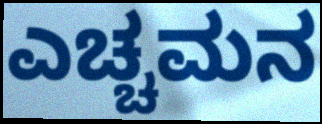
ಎಚ್ಚಮನ